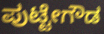
ಪುಟ್ಟೇಗೌಡ